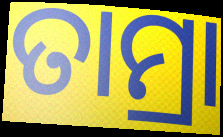
ତାମ୍ରା